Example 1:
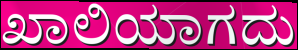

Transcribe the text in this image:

ಖಾಲಿಯಾಗದು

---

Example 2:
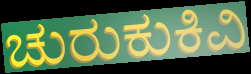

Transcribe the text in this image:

ಚುರುಕುಕಿವಿ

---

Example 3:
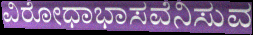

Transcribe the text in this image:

ವಿರೋಧಾಭಾಸವೆನಿಸುವ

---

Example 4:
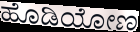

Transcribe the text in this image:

ಹೊಡಿಯೋಣ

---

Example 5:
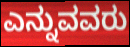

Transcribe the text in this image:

ಎನ್ನುವವರು